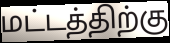
மட்டத்திற்கு